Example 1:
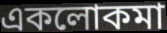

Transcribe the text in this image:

একলোকমা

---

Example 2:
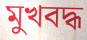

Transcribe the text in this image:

মুখবদ্ধ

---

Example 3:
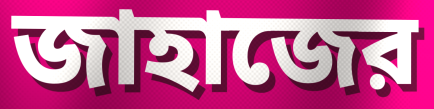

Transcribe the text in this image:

জাহাজের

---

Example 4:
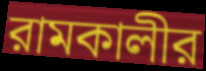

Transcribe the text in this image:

রামকালীর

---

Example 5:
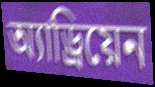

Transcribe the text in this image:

অ্যাড্রিয়েন